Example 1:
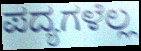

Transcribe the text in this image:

ಪದ್ಯಗಳೆಲ್ಲ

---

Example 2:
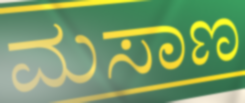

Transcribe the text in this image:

ಮಸಾಣ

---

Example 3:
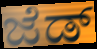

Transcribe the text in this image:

ಜೆಡ್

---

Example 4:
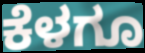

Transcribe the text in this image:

ಕೆಳಗೂ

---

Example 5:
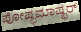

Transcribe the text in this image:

ಪೋಷ್ಟಮಾಷ್ಟರ್